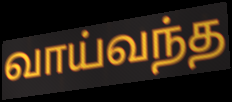
வாய்வந்த